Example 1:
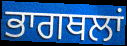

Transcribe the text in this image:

ਭਾਗਥਲਾਂ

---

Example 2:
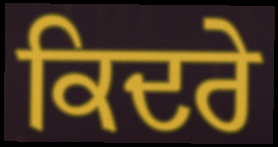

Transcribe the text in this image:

ਕਿਦਰੇ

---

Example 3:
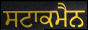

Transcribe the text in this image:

ਸਟਾਕਮੈਨ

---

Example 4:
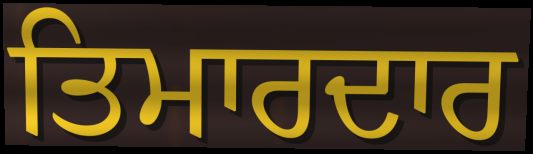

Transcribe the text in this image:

ਤਿਮਾਰਦਾਰ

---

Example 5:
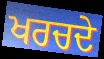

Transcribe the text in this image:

ਖਰਚਦੇ